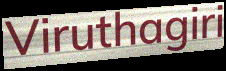
Viruthagiri